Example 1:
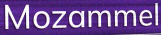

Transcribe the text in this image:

Mozammel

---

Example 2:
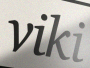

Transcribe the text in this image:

viki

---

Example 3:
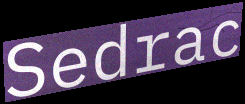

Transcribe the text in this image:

Sedrac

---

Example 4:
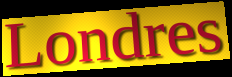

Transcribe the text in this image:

Londres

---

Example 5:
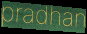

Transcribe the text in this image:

pradhan